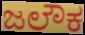
ಜಲೌಕ